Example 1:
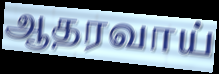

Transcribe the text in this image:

ஆதரவாய்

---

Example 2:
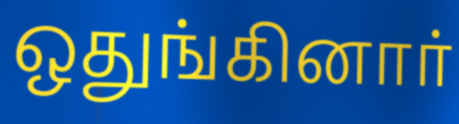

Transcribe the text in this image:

ஒதுங்கினார்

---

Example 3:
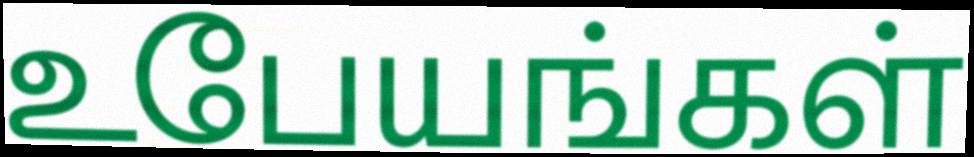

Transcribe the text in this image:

உபேயங்கள்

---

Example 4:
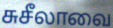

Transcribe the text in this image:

சுசீலாவை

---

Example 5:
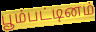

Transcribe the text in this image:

பூம்பட்டினம்